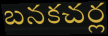
బనకచర్ల